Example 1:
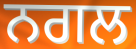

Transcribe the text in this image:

ਨਗਲ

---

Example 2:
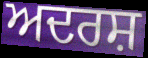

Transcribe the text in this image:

ਅਦਰਸ਼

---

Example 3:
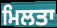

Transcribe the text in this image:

ਮਿਲਤਾ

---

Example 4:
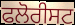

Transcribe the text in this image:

ਫਲੋਰੀਸਟ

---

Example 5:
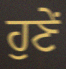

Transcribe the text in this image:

ਹੁਣੇਂ